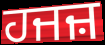
ਹਜਜ਼